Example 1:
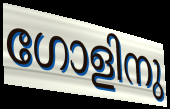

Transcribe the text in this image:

ഗോളിനു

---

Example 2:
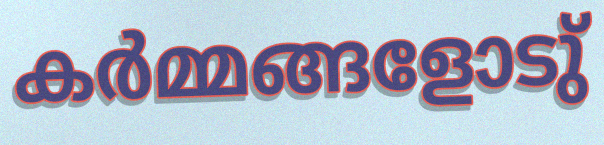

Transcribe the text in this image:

കർമ്മങ്ങളോടു്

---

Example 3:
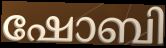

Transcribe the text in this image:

ഷോബി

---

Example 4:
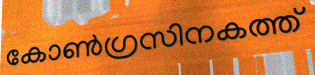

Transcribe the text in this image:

കോൺഗ്രസിനകത്ത്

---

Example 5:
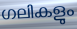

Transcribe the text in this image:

ഗലികളും